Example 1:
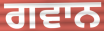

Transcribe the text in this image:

ਗਵਾਨ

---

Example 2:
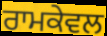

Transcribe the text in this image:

ਰਾਮਕੇਵਲ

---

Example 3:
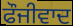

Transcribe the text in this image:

ਫੌਜੀਵਾਦ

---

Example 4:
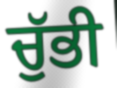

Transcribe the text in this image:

ਚੁੱਭੀ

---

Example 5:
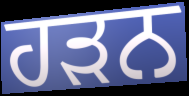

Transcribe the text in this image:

ਹੜਨ